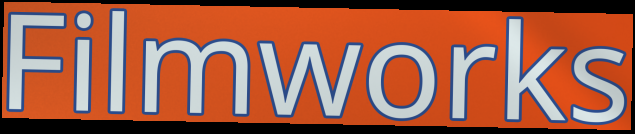
Filmworks